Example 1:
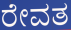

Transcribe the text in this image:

ರೇವತ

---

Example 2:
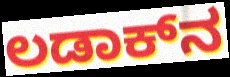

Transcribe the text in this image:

ಲಡಾಕ್‌ನ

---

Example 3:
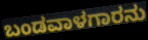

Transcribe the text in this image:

ಬಂಡವಾಳಗಾರನು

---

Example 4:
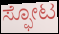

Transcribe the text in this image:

ಸ್ಫೋಟ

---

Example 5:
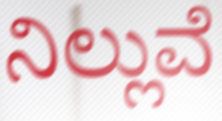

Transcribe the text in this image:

ನಿಲ್ಲುವೆ